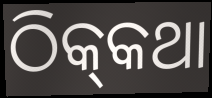
ଠିକ୍‌କଥା